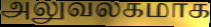
அலுவலகமாக